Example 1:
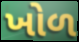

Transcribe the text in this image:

ખોળ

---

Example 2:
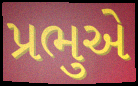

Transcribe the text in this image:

પ્રભુએ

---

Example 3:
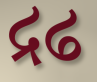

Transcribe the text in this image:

દ્રઢ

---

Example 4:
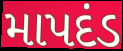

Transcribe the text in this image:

માપદંડ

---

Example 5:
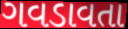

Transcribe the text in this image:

ગવડાવતા